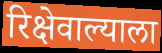
रिक्षेवाल्याला